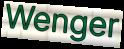
Wenger